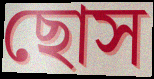
ছোস